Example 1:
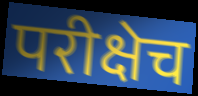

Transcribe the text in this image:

परीक्षेच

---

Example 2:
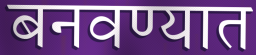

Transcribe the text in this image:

बनवण्यात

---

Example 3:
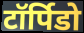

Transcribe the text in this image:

टॉर्पिडो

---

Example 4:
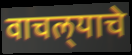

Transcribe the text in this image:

वाचल्याचे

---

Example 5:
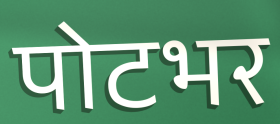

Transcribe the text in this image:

पोटभर